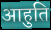
आहुति